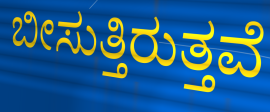
ಬೀಸುತ್ತಿರುತ್ತವೆ